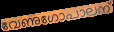
വേണുഗോപാലന്